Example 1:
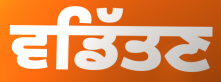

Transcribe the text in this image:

ਵਡਿੱਤਣ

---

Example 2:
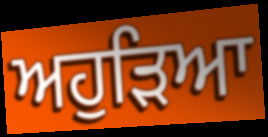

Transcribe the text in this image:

ਅਹੁੜਿਆ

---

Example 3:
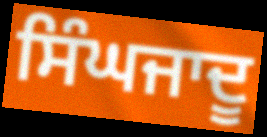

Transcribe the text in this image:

ਸਿੰਘਜਾਦੂ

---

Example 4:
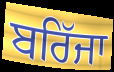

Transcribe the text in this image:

ਬਰਿੱਜਾ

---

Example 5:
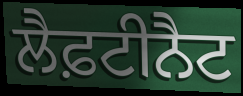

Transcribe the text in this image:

ਲੈਫ਼ਟੀਨੈਟ